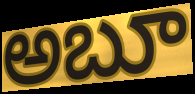
అబూ